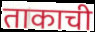
ताकाची